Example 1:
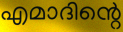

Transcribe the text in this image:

എമാദിന്റെ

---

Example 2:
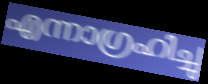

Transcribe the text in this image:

എന്നാഗ്രഹിച്ചു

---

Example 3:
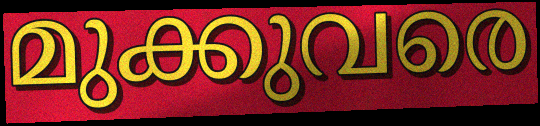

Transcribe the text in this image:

മുക്കുവരെ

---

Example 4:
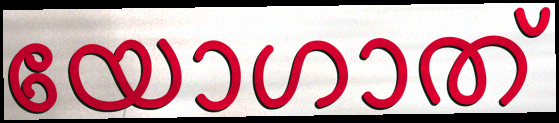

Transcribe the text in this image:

യോഗാത്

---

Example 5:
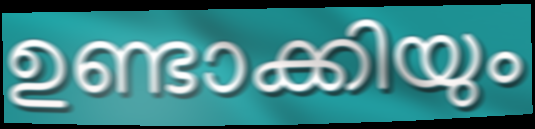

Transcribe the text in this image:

ഉണ്ടാക്കിയും